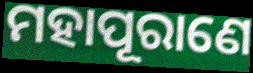
ମହାପୂରାଣେ